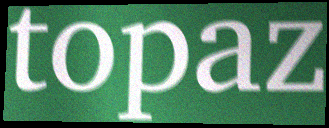
topaz